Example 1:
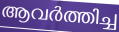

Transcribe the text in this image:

ആവർത്തിച്ച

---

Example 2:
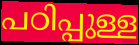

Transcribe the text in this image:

പഠിപ്പുള്ള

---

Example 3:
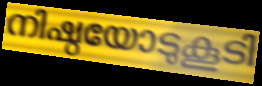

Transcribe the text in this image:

നിഷ്ഠയോടുകൂടി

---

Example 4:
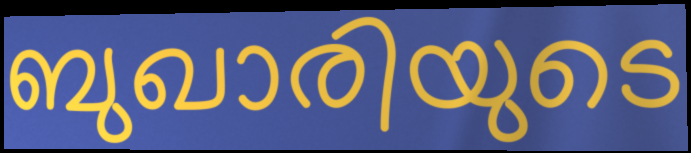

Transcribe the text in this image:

ബുഖാരിയുടെ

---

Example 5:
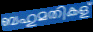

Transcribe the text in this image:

ബഹുമതികള്